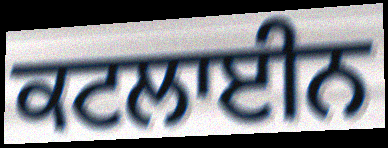
ਕਟਲਾਈਨ